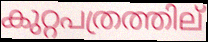
കുറ്റപത്രത്തില്